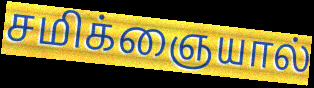
சமிக்ஞையால்